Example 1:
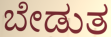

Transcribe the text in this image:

ಬೇಡುತ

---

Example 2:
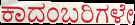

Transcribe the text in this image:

ಕಾದಂಬರಿಗಳೇ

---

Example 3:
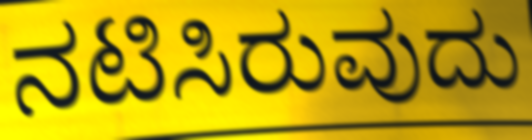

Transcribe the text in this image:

ನಟಿಸಿರುವುದು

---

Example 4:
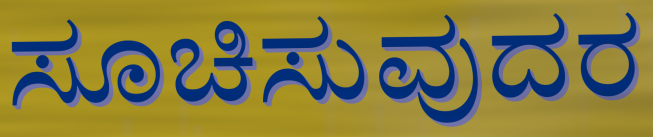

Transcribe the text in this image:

ಸೂಚಿಸುವುದರ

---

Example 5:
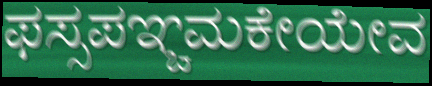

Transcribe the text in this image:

ಫಸ್ಸಪಞ್ಚಮಕೇಯೇವ